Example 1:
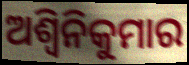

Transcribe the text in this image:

ଅଶ୍ୱିନିକୁମାର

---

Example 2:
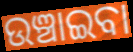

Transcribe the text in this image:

ଉଞ୍ଚାଇବା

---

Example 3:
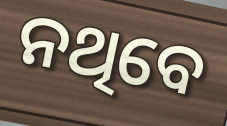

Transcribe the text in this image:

ନଥିବେ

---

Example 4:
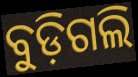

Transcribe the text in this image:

ବୁଡ଼ିଗଲି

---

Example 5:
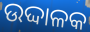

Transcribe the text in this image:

ଉଦ୍ଦାଳକ